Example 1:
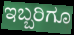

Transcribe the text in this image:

ಇಬ್ಬರಿಗೂ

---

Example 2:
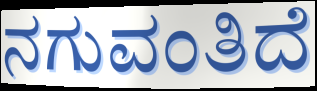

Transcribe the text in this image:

ನಗುವಂತಿದೆ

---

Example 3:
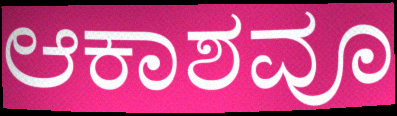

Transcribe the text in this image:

ಆಕಾಶವೂ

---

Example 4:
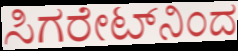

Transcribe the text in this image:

ಸಿಗರೇಟ್‌ನಿಂದ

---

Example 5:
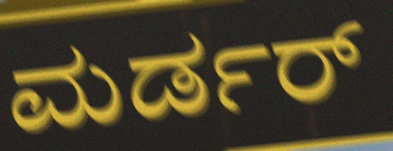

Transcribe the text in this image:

ಮರ್ಡರ್